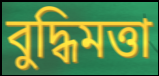
বুদ্ধিমত্তা